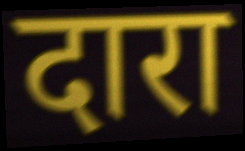
दारा